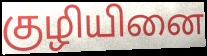
குழியினை